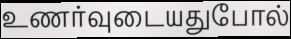
உணர்வுடையதுபோல்